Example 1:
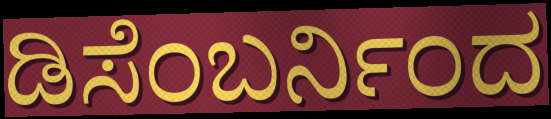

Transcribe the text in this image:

ಡಿಸೆಂಬರ್ನಿಂದ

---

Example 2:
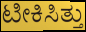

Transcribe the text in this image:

ಟೀಕಿಸಿತ್ತು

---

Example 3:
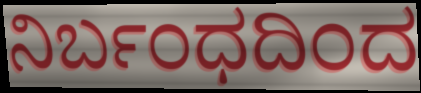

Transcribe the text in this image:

ನಿರ್ಬಂಧದಿಂದ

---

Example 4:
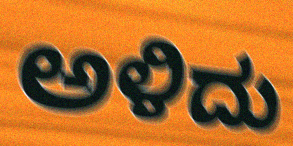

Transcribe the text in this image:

ಅಳಿದು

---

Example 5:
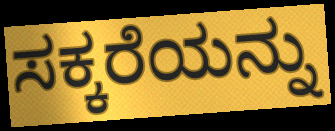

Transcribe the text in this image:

ಸಕ್ಕರೆಯನ್ನು